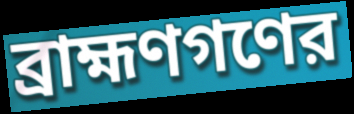
ব্রাহ্মণগণের